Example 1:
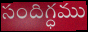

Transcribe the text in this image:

సందిగ్ధము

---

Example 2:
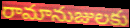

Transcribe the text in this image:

రామానుజులకు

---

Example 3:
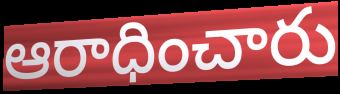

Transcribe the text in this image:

ఆరాధించారు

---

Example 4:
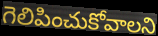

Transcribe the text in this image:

గెలిపించుకోవాలని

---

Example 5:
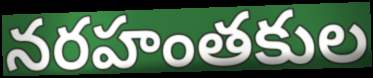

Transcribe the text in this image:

నరహంతకుల